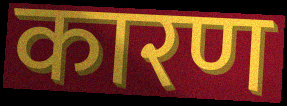
कारण